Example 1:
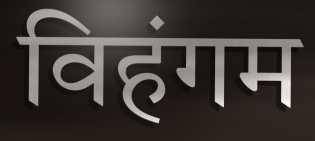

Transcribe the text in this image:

विहंगम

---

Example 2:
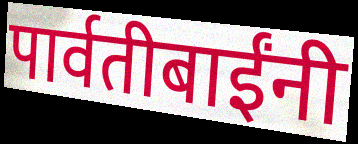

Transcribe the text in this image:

पार्वतीबाईंनी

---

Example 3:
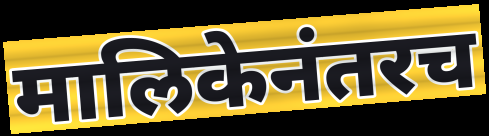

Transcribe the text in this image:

मालिकेनंतरच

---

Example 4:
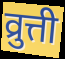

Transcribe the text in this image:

व्रुत्ती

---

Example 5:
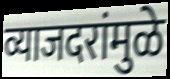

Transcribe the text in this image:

व्याजदरांमुळे